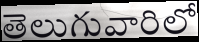
తెలుగువారిలో